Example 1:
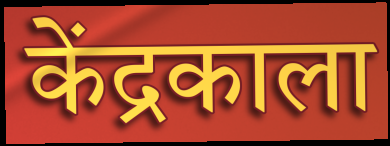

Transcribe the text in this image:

केंद्रकाला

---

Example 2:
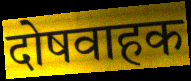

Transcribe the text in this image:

दोषवाहक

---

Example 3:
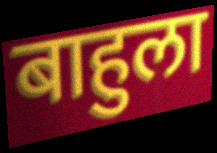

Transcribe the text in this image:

बाहुला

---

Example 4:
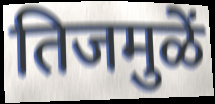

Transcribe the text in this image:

तिजमुळें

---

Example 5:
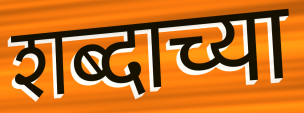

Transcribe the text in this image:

शब्दाच्या